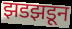
झडझडून